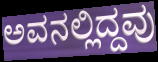
ಅವನಲ್ಲಿದ್ದವು